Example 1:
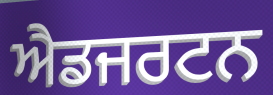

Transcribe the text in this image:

ਐਡਜਰਟਨ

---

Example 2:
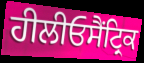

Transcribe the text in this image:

ਹੀਲੀਓਸੈਂਟ੍ਰਿਕ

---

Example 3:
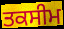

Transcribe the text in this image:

ਤਕਸੀਮ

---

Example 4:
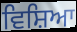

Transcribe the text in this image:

ਵਿਸ਼ਿਆ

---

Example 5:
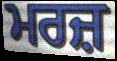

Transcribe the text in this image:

ਮਰਜ਼